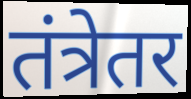
तंत्रेतर